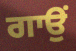
ਗਾਉਂ